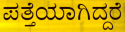
ಪತ್ತೆಯಾಗಿದ್ದರೆ